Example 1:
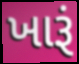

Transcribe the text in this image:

ખારૂં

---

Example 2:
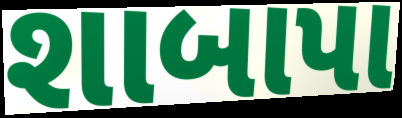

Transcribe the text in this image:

શાબાપા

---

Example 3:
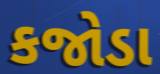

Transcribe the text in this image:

કજોડા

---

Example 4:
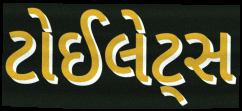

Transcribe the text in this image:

ટોઈલેટ્સ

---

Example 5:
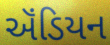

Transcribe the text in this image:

ઍંડિયન